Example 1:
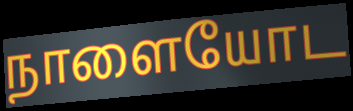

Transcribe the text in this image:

நாளையோட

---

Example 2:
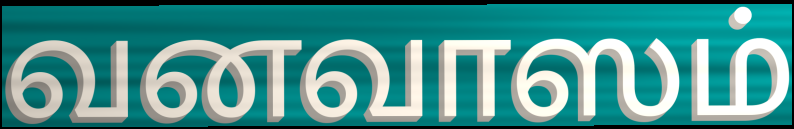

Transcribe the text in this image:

வனவாஸம்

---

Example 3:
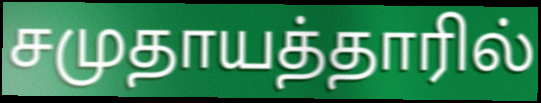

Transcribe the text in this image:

சமுதாயத்தாரில்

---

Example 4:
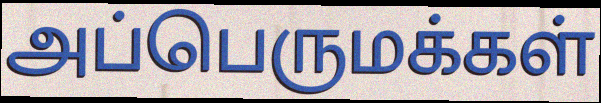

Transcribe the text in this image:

அப்பெருமக்கள்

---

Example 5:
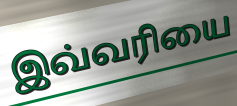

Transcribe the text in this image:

இவ்வரியை